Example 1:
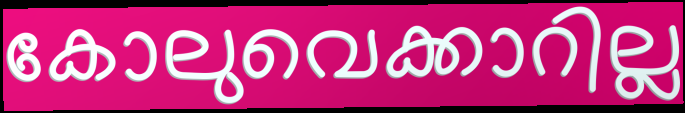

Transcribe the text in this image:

കോലുവെക്കാറില്ല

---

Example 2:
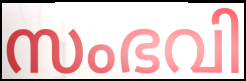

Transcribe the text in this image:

സംഭവി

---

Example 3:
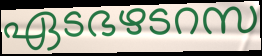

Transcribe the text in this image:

ഏടഭഴടറസ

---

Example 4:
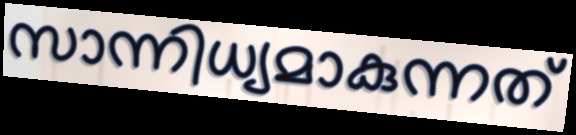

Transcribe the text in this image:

സാന്നിധ്യമാകുന്നത്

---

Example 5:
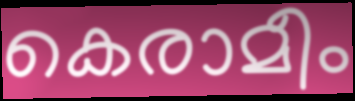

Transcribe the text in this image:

കെരാമീം